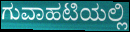
ಗುವಾಹಟಿಯಲ್ಲಿ